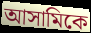
আসামিকে